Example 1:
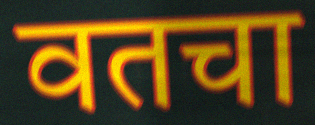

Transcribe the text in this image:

वतचा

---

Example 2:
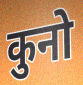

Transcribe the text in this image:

कुनो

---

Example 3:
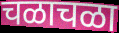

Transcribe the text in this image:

चळाचळा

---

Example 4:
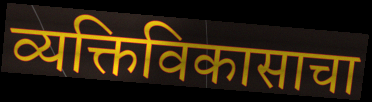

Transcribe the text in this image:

व्यक्तिविकासाचा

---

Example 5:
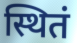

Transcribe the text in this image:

स्थितं